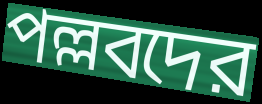
পল্লবদের